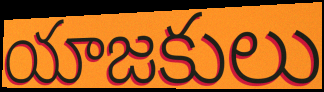
యాజకులు